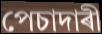
পেচাদাৰী